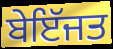
ਬੇਇੱਜਤ